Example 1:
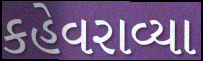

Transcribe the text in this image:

કહેવરાવ્યા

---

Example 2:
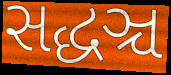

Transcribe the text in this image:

સદ્ધઞ્ચ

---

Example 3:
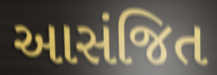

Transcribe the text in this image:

આસંજિત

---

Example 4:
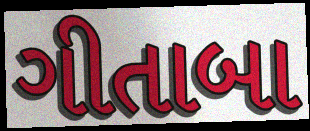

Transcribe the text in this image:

ગીતાબા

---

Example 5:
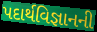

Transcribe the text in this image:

પદાર્થવિજ્ઞાનની